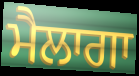
ਮੈਲਾਗਾ